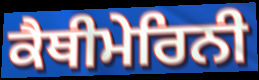
ਕੈਥੀਮੇਰਿਨੀ